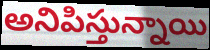
అనిపిస్తున్నాయి